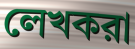
লেখকরা